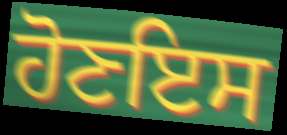
ਹੋਣਇਸ